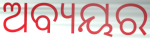
ଅବ୍ୟୟର